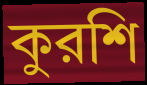
কুরশি